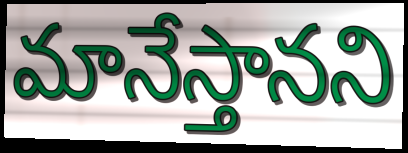
మానేస్తానని